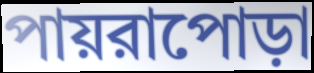
পায়রাপোড়া